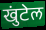
खुंटेल